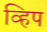
व्हिप